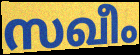
സഖീം